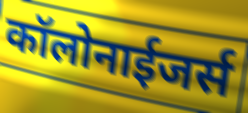
कॉलोनाईजर्स